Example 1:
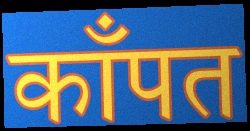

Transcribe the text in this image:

काँपत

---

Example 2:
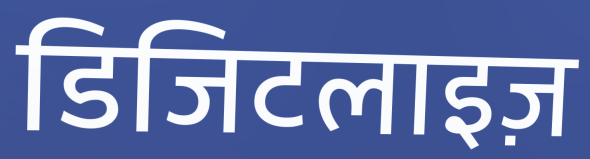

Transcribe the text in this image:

डिजिटलाइज़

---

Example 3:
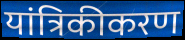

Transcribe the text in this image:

यांत्रिकीकरण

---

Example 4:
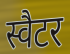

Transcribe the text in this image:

स्वैटर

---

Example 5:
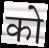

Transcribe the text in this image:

को